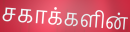
சகாக்களின்